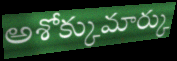
అశోక్కుమార్కు